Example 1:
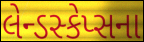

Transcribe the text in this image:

લેન્ડસ્કેપ્સના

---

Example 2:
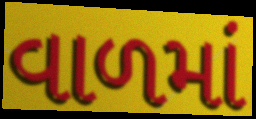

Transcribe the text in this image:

વાળમાં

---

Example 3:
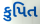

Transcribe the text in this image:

કુપિત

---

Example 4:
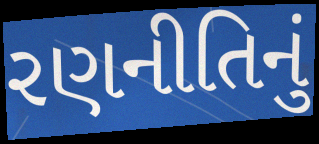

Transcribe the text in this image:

રણનીતિનું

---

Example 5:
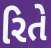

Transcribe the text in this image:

રિતે